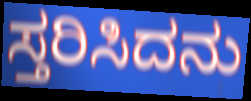
ಸ್ತರಿಸಿದನು